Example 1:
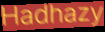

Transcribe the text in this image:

Hadhazy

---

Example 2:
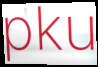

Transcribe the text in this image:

pku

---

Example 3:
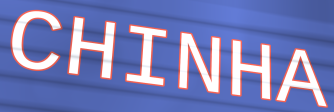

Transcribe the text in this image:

CHINHA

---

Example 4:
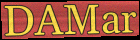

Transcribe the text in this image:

DAMar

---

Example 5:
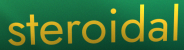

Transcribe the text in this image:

steroidal